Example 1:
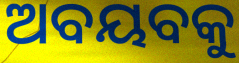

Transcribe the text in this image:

ଅବୟବକୁ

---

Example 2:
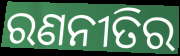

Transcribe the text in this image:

ରଣନୀତିର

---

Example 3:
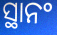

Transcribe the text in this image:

ସ୍ଥାନଂ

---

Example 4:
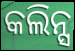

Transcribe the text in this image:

କଲିନ୍ସ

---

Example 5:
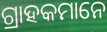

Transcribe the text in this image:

ଗ୍ରାହକମାନେ